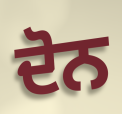
ਦੋਨ